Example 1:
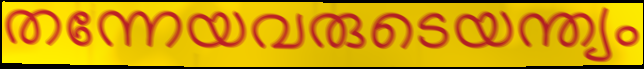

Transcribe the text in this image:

തന്നേയവരുടെയന്ത്യം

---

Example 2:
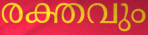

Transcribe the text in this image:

രക്തവും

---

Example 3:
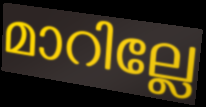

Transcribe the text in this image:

മാറില്ലേ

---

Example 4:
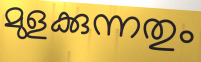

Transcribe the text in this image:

മുളക്കുന്നതും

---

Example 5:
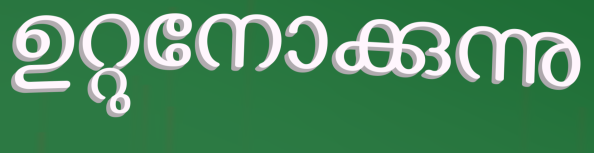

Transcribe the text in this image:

ഉറ്റുനോക്കുന്നു